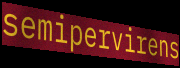
semipervirens